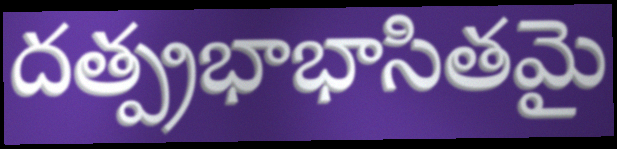
దత్ప్రభాభాసితమై